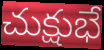
చుక్షుభే